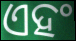
ଏହଂ